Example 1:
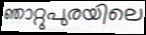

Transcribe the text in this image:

ഞാറ്റുപുരയിലെ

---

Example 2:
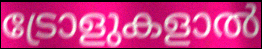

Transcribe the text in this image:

ട്രോളുകളാൽ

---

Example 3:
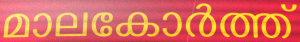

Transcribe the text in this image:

മാലകോർത്ത്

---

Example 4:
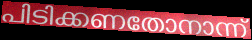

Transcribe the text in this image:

പിടിക്കണതോനാന്ന്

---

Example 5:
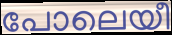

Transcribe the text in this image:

പോലെയീ